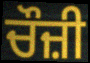
ਚੌਜ਼ੀ